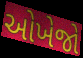
ઓખેજો